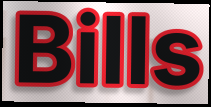
Bills